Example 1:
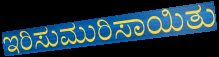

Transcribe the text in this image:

ಇರಿಸುಮುರಿಸಾಯಿತು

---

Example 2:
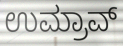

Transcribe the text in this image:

ಉಮ್ರಾವ್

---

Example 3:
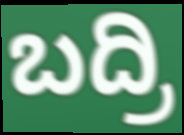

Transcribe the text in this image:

ಬದ್ರಿ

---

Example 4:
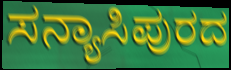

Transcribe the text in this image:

ಸನ್ಯಾಸಿಪುರದ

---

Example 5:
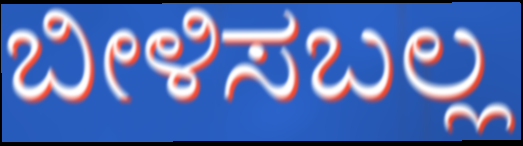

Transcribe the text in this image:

ಬೀಳಿಸಬಲ್ಲ